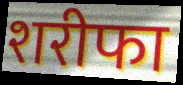
शरीफा